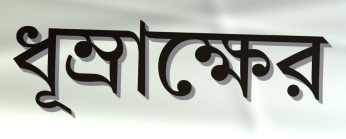
ধূম্রাক্ষের